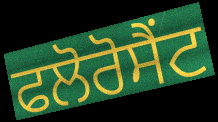
ਫਲੋਰੋਸੈਂਟ